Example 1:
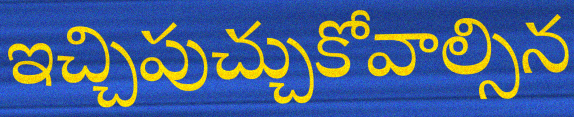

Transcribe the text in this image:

ఇచ్చిపుచ్చుకోవాల్సిన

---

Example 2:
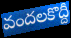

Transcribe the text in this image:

వందలకొద్దీ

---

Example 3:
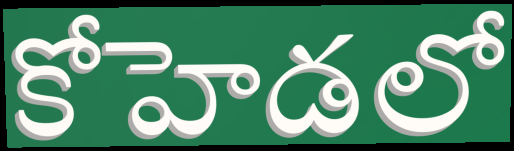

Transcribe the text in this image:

కోహెడలో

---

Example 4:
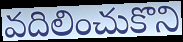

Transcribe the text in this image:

వదిలించుకొని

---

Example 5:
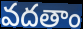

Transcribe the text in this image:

వదతాం